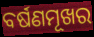
ବର୍ଷଣମୂଖର